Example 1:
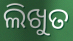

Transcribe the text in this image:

ଲିଖୁତ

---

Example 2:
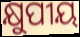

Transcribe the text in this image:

କ୍ଷୁପୀୟ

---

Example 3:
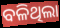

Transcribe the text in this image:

ବଳିଥିଲା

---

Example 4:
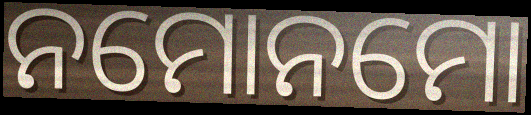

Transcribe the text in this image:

ନମୋନମୋ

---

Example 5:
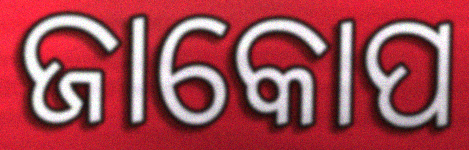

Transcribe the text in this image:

ଜାକୋପ